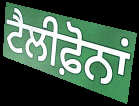
ਟੈਲੀਫ਼ੋਨਾਂ